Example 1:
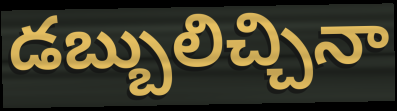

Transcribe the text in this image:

డబ్బులిచ్చినా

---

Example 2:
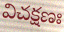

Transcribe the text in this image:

విచక్షణః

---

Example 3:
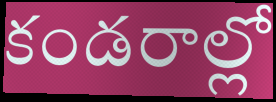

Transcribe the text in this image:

కండరాల్లో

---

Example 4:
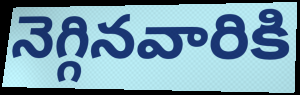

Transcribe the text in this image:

నెగ్గినవారికి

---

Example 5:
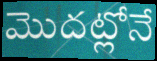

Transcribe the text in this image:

మొదట్లోనే